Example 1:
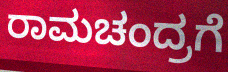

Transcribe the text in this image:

ರಾಮಚಂದ್ರಗೆ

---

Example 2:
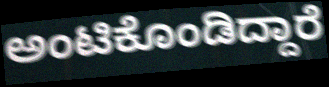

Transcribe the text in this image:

ಅಂಟಿಕೊಂಡಿದ್ದಾರೆ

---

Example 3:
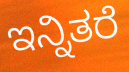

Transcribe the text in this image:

ಇನ್ನಿತರೆ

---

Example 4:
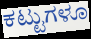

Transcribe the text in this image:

ಕಟ್ಟುಗಳೂ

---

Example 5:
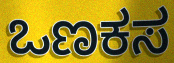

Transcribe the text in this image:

ಒಣಕಸ